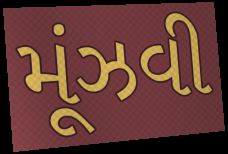
મૂંઝવી